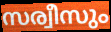
സര്വീസും